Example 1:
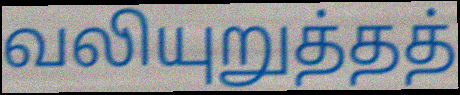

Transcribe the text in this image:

வலியுறுத்தத்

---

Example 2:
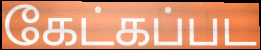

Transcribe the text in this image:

கேட்கப்பட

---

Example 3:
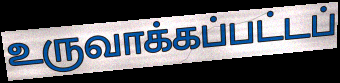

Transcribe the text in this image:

உருவாக்கப்பட்டப்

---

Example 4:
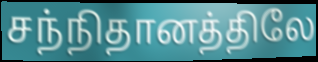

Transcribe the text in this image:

சந்நிதானத்திலே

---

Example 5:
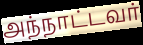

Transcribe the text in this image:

அந்நாட்டவர்